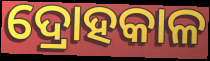
ଦ୍ରୋହକାଳ